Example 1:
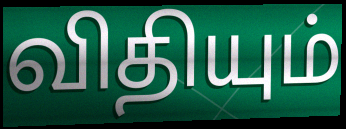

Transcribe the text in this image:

விதியும்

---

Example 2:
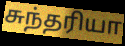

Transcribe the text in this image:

சுந்தரியா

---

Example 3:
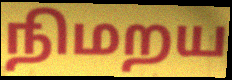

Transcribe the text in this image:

நிமறய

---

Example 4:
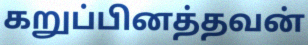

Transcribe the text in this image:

கறுப்பினத்தவன்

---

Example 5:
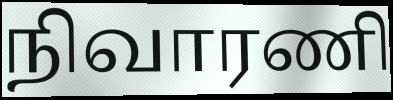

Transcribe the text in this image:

நிவாரணி